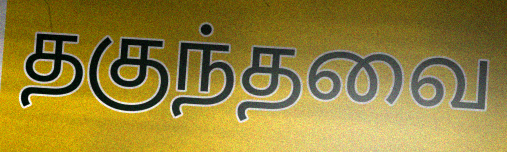
தகுந்தவை